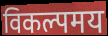
विकल्पमय